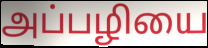
அப்பழியை